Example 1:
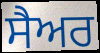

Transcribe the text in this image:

ਸੈਅਰ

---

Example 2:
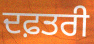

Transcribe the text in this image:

ਦਫ਼ਤਰੀ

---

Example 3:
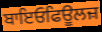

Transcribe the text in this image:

ਬਾਇਓਫਿਊਲਜ਼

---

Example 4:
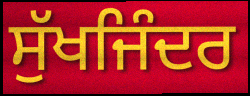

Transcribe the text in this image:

ਸੁੱਖਜਿੰਦਰ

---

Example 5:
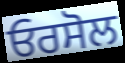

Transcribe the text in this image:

ਓਰਸੋਲ